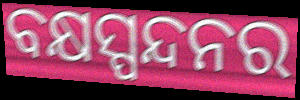
ବକ୍ଷସ୍ପନ୍ଦନର